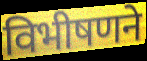
विभीषणने